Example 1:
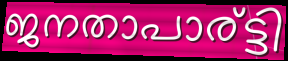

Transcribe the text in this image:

ജനതാപാര്ട്ടി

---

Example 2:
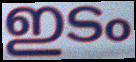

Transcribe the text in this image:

ഇടം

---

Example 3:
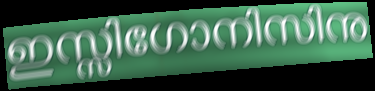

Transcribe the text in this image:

ഇസ്സിഗോനിസിനു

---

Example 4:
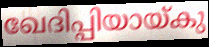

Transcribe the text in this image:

ഖേദിപ്പിയായ്കു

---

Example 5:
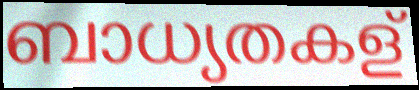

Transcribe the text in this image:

ബാധ്യതകള്